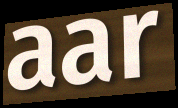
aar